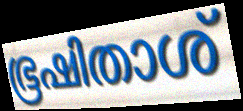
ഭൂഷിതാശ്